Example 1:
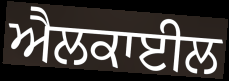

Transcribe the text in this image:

ਐਲਕਾਈਲ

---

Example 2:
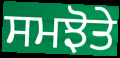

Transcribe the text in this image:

ਸਮਝੋਤੇ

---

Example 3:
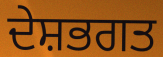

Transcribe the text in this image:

ਦੇਸ਼ਭਗਤ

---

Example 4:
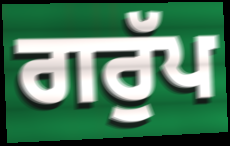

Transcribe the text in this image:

ਗਰੁੱਪ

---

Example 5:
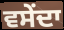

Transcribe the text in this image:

ਵਸੇਂਦਾ